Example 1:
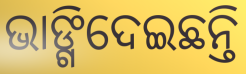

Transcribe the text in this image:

ଭାଙ୍ଗିଦେଇଛନ୍ତି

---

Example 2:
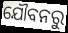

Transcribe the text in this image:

ଯୌବନରୁ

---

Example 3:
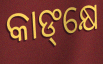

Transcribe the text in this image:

କାଙ୍‌କ୍ଷେ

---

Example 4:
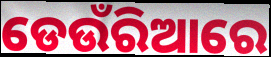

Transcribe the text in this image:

ଡେଉଁରିଆରେ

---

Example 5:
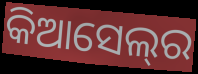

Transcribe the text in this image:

କିଆସେଲ୍‌ର